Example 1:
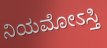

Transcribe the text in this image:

ನಿಯಮೋಽಸ್ತಿ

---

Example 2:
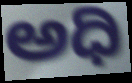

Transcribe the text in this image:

ಅಧಿ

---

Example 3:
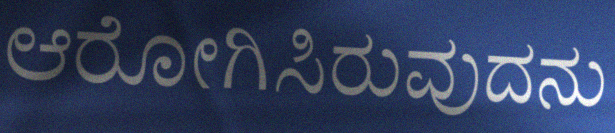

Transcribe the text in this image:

ಆರೋಗಿಸಿರುವುದನು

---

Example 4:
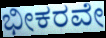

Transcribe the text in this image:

ಭೀಕರವೇ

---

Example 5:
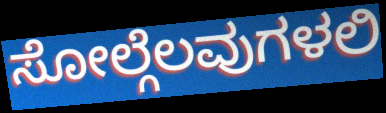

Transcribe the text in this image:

ಸೋಲ್ಗೆಲವುಗಳಲಿ